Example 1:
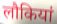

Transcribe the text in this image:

लौकियां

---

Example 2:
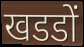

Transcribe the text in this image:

खडडों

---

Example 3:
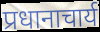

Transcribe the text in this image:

प्रधानाचार्य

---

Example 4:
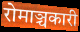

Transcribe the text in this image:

रोमाञ्चकारी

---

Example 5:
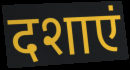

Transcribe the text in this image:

दशाएं